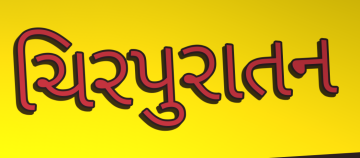
ચિરપુરાતન